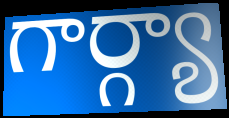
గార్గ్యా